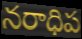
నరాధిప